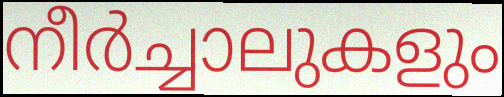
നീർച്ചാലുകളും